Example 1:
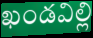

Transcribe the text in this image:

ఖండవిల్లి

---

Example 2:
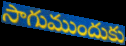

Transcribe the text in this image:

సాగుముందుకు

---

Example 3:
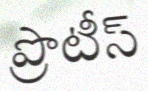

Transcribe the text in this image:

ప్రొటీస్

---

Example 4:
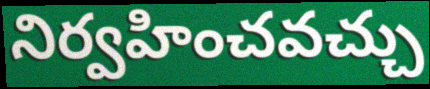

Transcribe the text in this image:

నిర్వహించవచ్చు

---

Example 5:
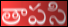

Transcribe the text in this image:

తాపసి